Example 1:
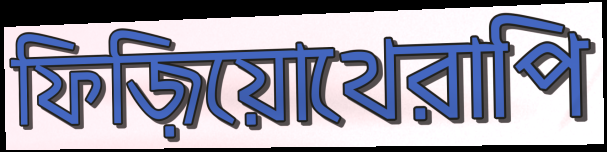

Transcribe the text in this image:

ফিজ়িয়োথেরাপি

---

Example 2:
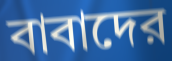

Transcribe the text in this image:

বাবাদের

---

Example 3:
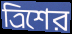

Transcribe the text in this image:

ত্রিশের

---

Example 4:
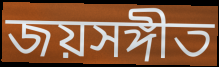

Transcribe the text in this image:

জয়সঙ্গীত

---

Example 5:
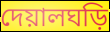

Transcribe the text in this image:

দেয়ালঘড়ি